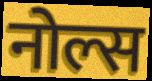
नोल्स